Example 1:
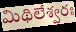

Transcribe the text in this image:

మిథిలేశ్వరః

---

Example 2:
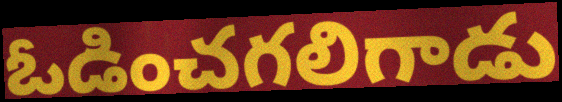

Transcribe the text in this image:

ఓడించగలిగాడు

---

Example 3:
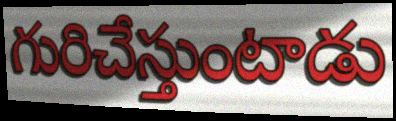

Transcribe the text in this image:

గురిచేస్తుంటాడు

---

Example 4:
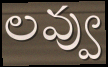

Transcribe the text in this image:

లవ్వు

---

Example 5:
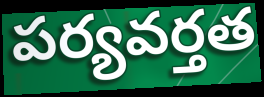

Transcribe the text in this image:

పర్యవర్తత